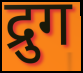
द्रुग